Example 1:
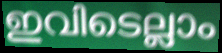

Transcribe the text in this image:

ഇവിടെല്ലാം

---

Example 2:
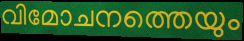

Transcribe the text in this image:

വിമോചനത്തെയും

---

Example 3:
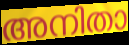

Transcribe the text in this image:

അനിതാ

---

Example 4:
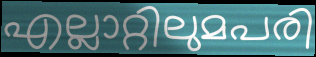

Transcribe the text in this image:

എല്ലാറ്റിലുമപരി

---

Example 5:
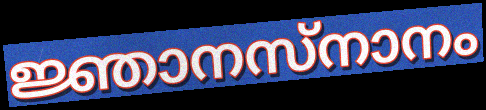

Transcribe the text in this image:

ജ്ഞാനസ്നാനം